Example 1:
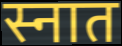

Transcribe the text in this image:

स्नात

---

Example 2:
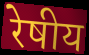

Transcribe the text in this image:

रेषीय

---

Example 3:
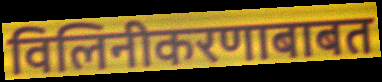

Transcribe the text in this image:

विलिनीकरणाबाबत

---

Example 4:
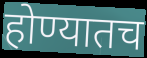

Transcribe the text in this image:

होण्यातच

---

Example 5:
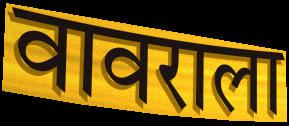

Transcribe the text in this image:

वावराला